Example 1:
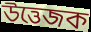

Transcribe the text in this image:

উত্তেজক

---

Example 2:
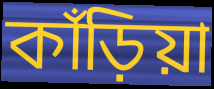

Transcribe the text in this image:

কাঁড়িয়া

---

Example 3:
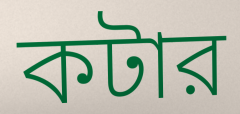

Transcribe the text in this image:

কটার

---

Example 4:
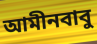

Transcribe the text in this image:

আমীনবাবু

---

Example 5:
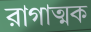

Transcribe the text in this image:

রাগাত্মক